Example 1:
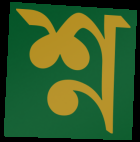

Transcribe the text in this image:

শ্ন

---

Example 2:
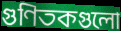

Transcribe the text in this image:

গুণিতকগুলো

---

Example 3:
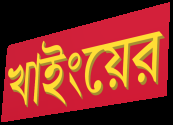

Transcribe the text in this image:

খাইংয়ের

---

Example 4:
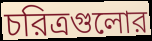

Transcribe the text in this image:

চরিত্রগুলোর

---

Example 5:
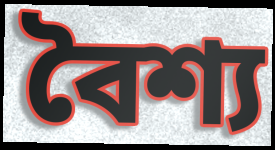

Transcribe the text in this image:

বৈশ্য